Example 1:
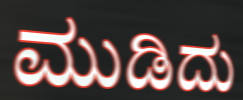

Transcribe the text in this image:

ಮುಡಿದು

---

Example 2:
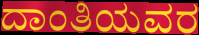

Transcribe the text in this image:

ದಾಂತಿಯವರ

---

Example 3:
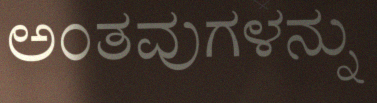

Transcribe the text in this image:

ಅಂತವುಗಳನ್ನು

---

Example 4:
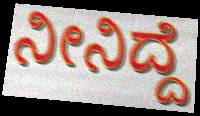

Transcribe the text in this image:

ನೀನಿದ್ದೆ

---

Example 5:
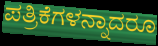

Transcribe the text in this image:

ಪತ್ರಿಕೆಗಳನ್ನಾದರೂ